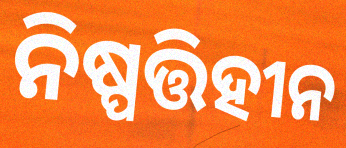
ନିଷ୍ପତ୍ତିହୀନ